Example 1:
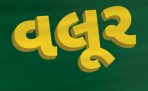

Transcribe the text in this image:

વલૂર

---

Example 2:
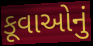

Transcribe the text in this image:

કૂવાઓનું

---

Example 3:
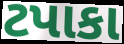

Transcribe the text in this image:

ટપાકા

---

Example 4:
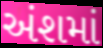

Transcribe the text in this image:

અંશમાં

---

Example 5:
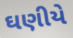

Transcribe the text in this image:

ઘણીયે